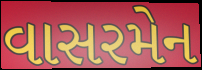
વાસરમેન